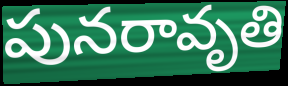
పునరావృతి